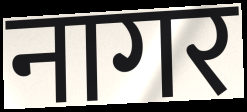
नागर